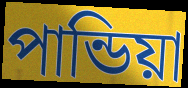
পান্ডিয়া